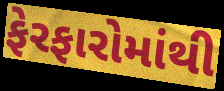
ફેરફારોમાંથી